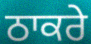
ਠਾਕਰੇ